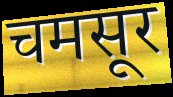
चमसूर